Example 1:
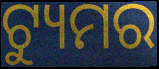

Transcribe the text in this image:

ଟ୍ୟୁମର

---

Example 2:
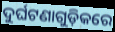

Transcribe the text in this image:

ଦୁର୍ଘଟଣାଗୁଡ଼ିକରେ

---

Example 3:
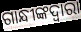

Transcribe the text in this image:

ଗାନ୍ଧୀଙ୍କଦ୍ଵାରା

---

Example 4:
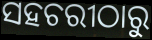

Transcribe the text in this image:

ସହଚରୀଠାରୁ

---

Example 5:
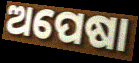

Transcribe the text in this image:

ଅପେଷା